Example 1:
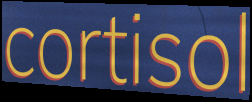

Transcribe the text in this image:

cortisol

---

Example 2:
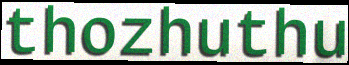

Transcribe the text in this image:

thozhuthu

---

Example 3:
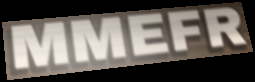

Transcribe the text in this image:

MMEFR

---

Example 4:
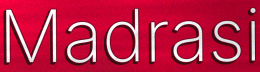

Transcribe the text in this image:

Madrasi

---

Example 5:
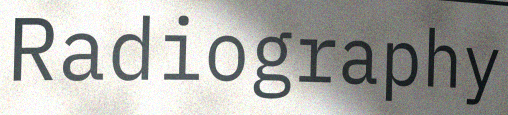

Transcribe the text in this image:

Radiography